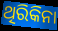
ଥିରିକିନା